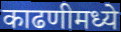
काढणीमध्ये